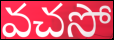
వచసో